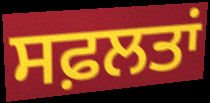
ਸਫ਼ਲਤਾਂ